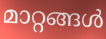
മാറ്റങ്ങൾ